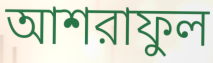
আশরাফুল